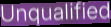
Unqualified